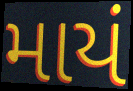
માયં